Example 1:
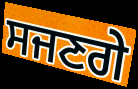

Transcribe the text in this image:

ਸਜਣਗੇ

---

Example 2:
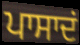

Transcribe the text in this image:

ਪਾਸਾਦਂ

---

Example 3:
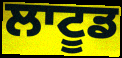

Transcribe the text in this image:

ਲਾਟੂਡ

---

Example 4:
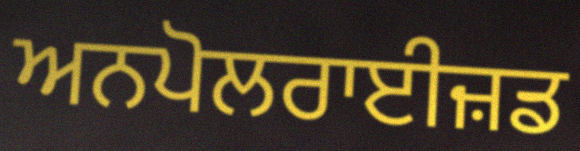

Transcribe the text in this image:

ਅਨਪੋਲਰਾਈਜ਼ਡ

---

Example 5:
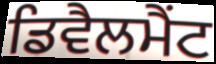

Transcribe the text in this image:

ਡਿਵੈਲਮੈਂਟ